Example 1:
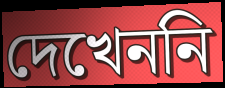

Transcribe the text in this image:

দেখেননি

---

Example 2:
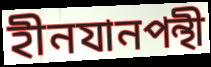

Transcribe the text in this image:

হীনযানপন্থী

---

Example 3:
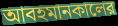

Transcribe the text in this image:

আবহমানকালের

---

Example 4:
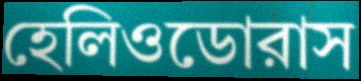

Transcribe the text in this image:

হেলিওডোরাস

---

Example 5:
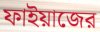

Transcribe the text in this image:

ফাইয়াজের